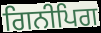
ਗਿਨੀਪਿਗ